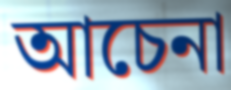
আচেনা